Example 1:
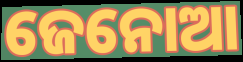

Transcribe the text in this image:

ଜେନୋଆ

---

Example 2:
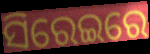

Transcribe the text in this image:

ସିରେଇରେ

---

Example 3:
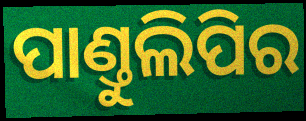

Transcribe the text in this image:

ପାଣ୍ତୁଲିପିର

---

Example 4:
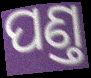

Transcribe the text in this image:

ପଣ୍ତ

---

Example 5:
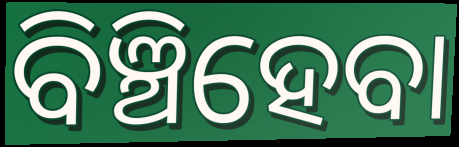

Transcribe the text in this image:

ବିଞ୍ଚିହେବା